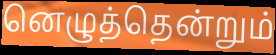
னெழுத்தென்றும்